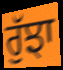
ਰੁੱਝਾ